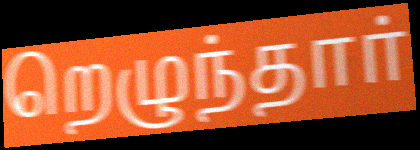
றெழுந்தார்